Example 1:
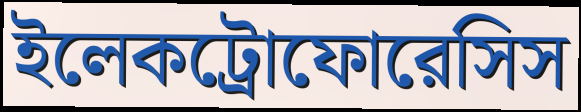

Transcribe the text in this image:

ইলেকট্রোফোরেসিস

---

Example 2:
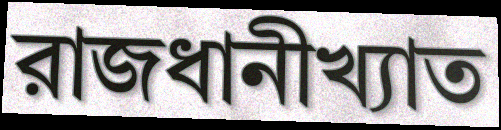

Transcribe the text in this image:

রাজধানীখ্যাত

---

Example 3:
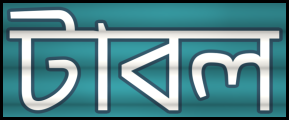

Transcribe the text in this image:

টাবল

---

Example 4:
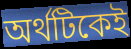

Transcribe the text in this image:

অর্থটিকেই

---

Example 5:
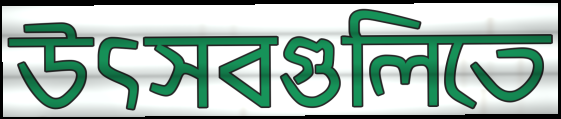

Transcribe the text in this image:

উৎসবগুলিতে